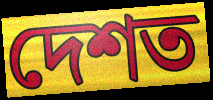
দেশত